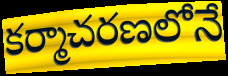
కర్మాచరణలోనే